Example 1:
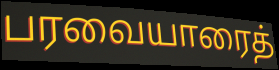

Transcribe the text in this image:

பரவையாரைத்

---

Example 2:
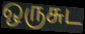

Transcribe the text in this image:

ஒருசுட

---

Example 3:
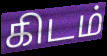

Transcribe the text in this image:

கிடம்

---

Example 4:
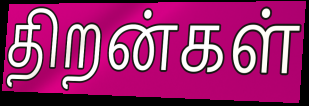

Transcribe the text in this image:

திறன்கள்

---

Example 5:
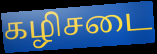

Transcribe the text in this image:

கழிசடை